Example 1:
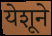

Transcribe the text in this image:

येशूने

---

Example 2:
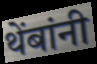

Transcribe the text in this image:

थेंबांनी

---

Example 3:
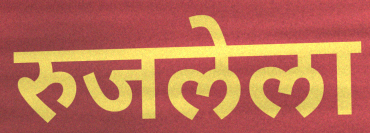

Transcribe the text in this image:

रुजलेला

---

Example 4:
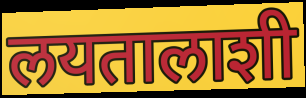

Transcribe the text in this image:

लयतालाशी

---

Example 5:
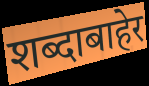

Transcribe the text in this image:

शब्दाबाहेर